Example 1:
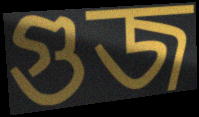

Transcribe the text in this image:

গুজ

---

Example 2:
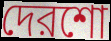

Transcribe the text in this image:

দেরশো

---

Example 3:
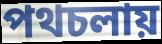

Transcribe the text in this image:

পথচলায়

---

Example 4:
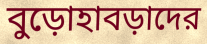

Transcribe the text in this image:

বুড়োহাবড়াদের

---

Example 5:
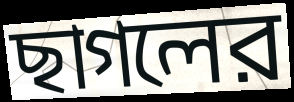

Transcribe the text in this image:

ছাগলের